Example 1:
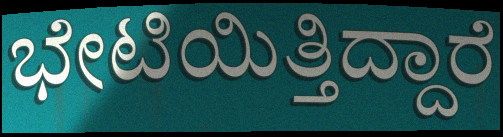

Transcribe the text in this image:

ಭೇಟಿಯಿತ್ತಿದ್ದಾರೆ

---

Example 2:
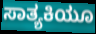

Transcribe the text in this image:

ಸಾತ್ಯಕಿಯೂ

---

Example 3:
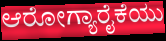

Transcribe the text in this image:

ಆರೋಗ್ಯಾರೈಕೆಯು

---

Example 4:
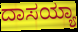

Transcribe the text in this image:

ದಾಸಯ್ಯಾ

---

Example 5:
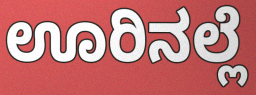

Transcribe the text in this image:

ಊರಿನಲ್ಲೆ